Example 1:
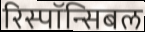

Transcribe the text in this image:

रिस्पॉन्सिबल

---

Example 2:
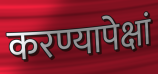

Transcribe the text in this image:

करण्यापेक्षां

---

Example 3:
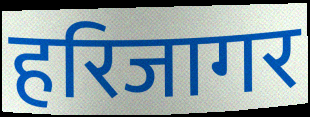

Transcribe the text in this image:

हरिजागर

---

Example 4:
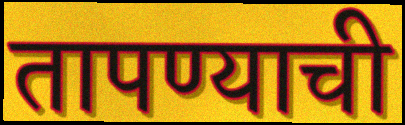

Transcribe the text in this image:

तापण्याची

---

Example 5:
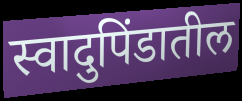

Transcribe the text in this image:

स्वादुपिंडातील